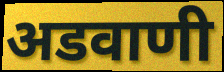
अडवाणी